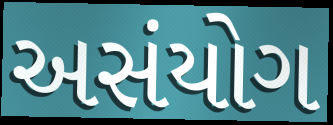
અસંયોગ